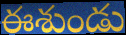
ఈశుండు